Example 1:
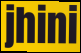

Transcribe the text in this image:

jhini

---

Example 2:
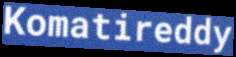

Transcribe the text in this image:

Komatireddy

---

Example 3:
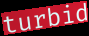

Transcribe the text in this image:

turbid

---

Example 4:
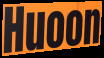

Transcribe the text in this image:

Huoon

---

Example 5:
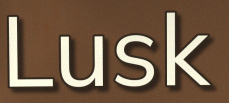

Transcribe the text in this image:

Lusk